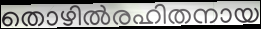
തൊഴിൽരഹിതനായ